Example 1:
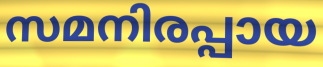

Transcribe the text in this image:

സമനിരപ്പായ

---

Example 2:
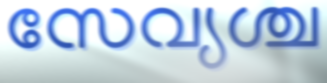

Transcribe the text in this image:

സേവ്യശ്ച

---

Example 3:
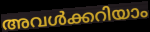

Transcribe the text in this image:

അവൾക്കറിയാം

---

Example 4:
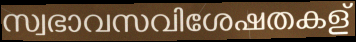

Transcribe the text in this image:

സ്വഭാവസവിശേഷതകള്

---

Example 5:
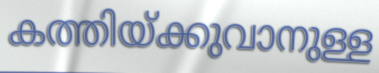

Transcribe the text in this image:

കത്തിയ്ക്കുവാനുള്ള